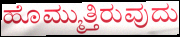
ಹೊಮ್ಮುತ್ತಿರುವುದು